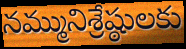
నమ్మునిశ్రేష్ఠులకు